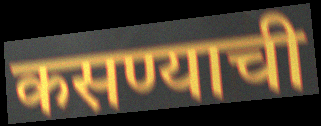
कसण्याची